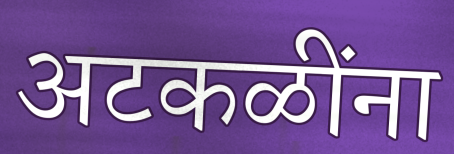
अटकळींना